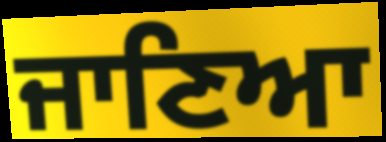
ਜਾਣਿਆ